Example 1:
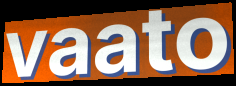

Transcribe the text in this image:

vaato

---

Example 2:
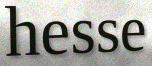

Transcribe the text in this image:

hesse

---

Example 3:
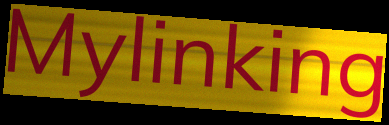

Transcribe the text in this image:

Mylinking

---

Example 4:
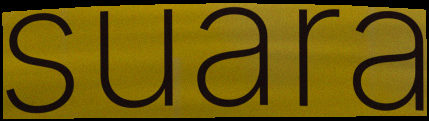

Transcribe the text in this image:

suara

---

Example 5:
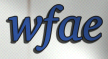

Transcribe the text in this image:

wfae